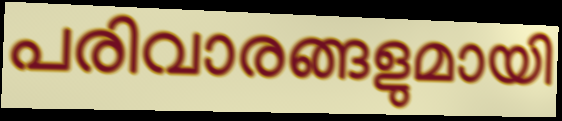
പരിവാരങ്ങളുമായി